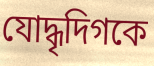
যোদ্ধৃদিগকে